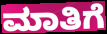
ಮಾತಿಗೆ